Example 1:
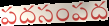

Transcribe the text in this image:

పదసంపద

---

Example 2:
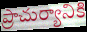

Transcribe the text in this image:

ప్రాచుర్యానికి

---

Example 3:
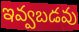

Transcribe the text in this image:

ఇవ్వబడవు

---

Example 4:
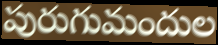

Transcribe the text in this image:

పురుగుమందుల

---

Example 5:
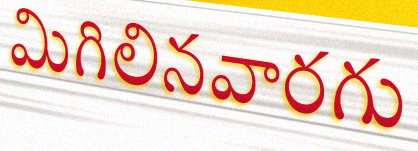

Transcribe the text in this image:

మిగిలినవారగు